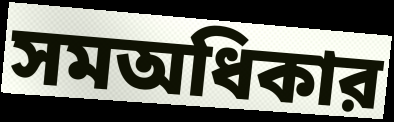
সমঅধিকার